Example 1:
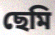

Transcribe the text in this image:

ছেমি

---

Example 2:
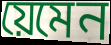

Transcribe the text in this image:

য়েমেন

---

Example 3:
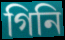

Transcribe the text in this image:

গিনি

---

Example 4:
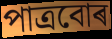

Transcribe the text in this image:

পাত্ৰবোৰ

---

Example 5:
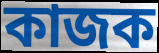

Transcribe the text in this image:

কাজক